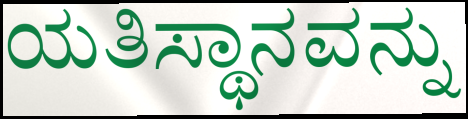
ಯತಿಸ್ಥಾನವನ್ನು